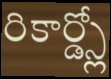
రికార్డ్స్లో